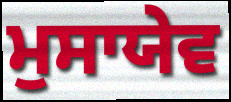
ਮੁਸਾਯੇਵ